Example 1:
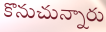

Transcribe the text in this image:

కొనుచున్నారు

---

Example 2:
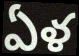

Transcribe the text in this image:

ఏళ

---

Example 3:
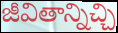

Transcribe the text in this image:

జీవితాన్నిచ్చి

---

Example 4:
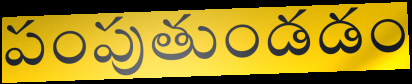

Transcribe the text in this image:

పంపుతుండడం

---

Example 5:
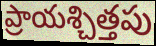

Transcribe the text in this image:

ప్రాయశ్చిత్తపు